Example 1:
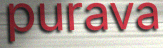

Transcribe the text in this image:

purava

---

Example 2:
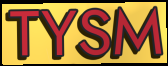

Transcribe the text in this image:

TYSM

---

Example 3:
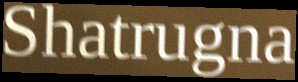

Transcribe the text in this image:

Shatrugna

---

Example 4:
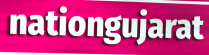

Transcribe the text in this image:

nationgujarat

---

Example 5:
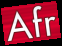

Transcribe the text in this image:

Afr